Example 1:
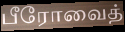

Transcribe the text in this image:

பீரோவைத்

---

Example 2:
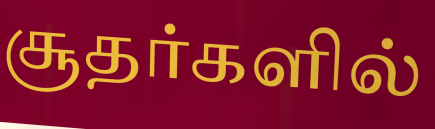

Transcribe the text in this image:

சூதர்களில்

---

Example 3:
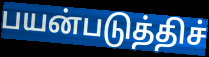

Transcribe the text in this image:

பயன்படுத்திச்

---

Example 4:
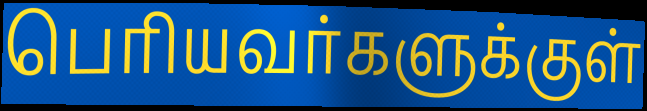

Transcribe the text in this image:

பெரியவர்களுக்குள்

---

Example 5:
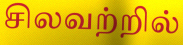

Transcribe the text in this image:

சிலவற்றில்